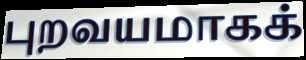
புறவயமாகக்